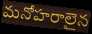
మనోహరాలైన